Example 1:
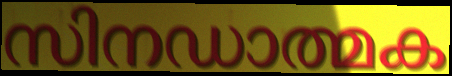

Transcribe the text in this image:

സിനഡാത്മക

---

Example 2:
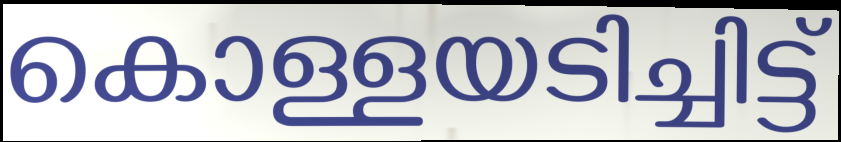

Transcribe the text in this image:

കൊള്ളയടിച്ചിട്ട്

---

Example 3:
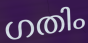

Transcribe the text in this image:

ഗതിം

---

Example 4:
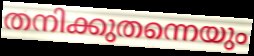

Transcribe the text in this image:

തനിക്കുതന്നെയും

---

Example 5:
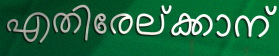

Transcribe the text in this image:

എതിരേല്ക്കാന്